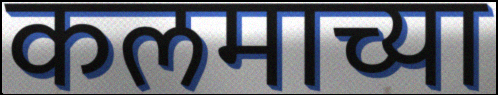
कलमाच्या